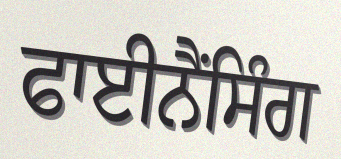
ਫਾਈਨੈਂਸਿੰਗ